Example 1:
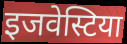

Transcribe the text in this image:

इजवेस्टिया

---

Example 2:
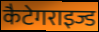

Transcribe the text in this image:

कैटेगराइज्ड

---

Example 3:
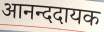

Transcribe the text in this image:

आनन्ददायक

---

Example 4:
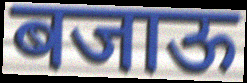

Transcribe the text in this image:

बजाऊ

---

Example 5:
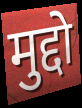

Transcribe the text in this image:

मुद्दो